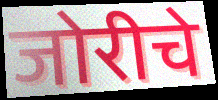
जोरीचे